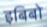
इबिबो